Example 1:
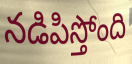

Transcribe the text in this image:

నడిపిస్తోంది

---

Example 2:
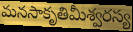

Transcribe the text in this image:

మనసాకృతిమీశ్వరస్య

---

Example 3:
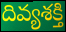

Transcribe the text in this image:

దివ్యశక్తి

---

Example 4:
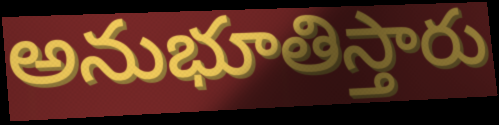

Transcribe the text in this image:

అనుభూతిస్తారు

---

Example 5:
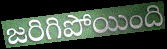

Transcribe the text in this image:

జరిగిపోయింది